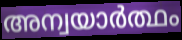
അന്വയാർത്ഥം